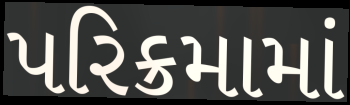
પરિક્રમામાં